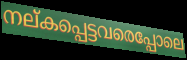
നല്കപ്പെട്ടവരെപ്പോലെ